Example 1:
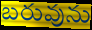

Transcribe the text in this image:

బరువును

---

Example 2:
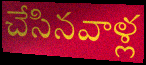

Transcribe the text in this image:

చేసినవాళ్ల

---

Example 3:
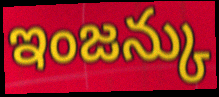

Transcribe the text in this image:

ఇంజన్కు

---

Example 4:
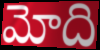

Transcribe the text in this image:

మోది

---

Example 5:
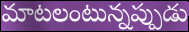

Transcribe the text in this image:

మాటలంటున్నప్పుడు